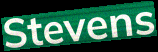
Stevens